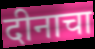
दीनाचा